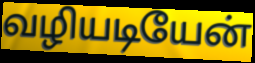
வழியடியேன்